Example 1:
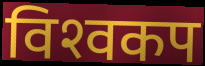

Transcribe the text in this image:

विश्वकप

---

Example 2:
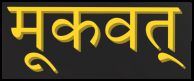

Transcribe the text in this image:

मूकवत्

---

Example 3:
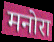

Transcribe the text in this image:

मनोरा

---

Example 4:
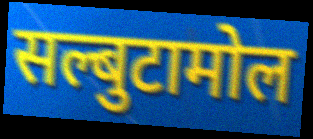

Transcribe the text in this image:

सल्बुटामोल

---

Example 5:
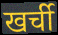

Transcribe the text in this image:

खर्ची